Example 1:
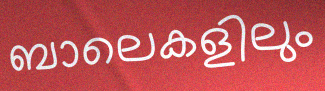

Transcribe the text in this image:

ബാലെകളിലും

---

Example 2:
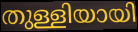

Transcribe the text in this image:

തുള്ളിയായി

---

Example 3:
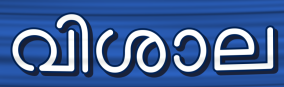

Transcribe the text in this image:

വിശാല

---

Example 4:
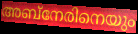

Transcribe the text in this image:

അബ്നേരിനെയും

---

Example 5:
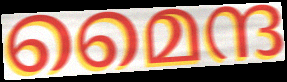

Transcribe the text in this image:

മൈന്ദ